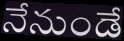
నేనుండే